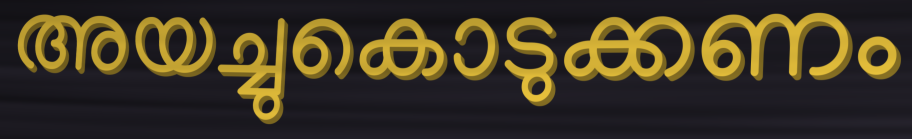
അയച്ചുകൊടുക്കണം